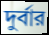
দুর্বার